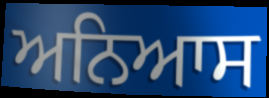
ਅਨਿਆਸ